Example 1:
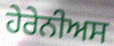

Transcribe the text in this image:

ਹੇਰੇਨੀਅਸ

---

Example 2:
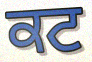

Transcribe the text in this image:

ਕਟ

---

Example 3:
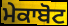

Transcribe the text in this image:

ਮੇਕਾਬੋਟ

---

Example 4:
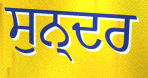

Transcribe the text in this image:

ਸੁਨ੍ਦਰ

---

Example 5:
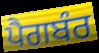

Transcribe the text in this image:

ਪੈਗਬੰਰ